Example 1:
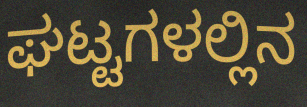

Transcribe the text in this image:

ಘಟ್ಟಗಳಲ್ಲಿನ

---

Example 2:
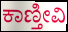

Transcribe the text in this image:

ಕಾಣ್ತೀವಿ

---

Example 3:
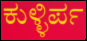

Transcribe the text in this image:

ಕುಳ್ಳಿರ್ಪ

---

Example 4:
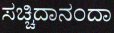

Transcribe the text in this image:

ಸಚ್ಚಿದಾನಂದಾ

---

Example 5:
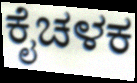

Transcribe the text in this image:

ಕೈಚಳಕ